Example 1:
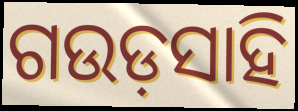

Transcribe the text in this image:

ଗଉଡ଼ସାହି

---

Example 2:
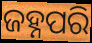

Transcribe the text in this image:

ଜହ୍ନପରି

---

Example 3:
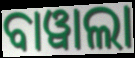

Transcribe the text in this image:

ବାୱାଲା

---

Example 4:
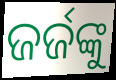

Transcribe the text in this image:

ଜର୍ଜଙ୍କୁ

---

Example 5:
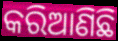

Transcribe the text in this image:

କରିଆଣିଛି